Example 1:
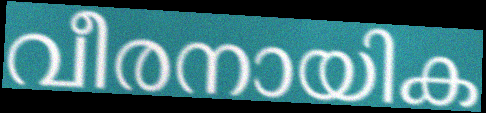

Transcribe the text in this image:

വീരനായിക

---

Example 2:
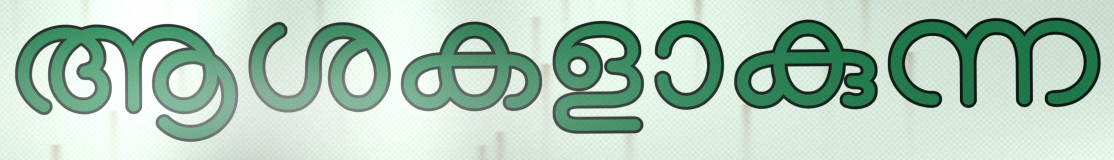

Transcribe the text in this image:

ആശകളാകുന്ന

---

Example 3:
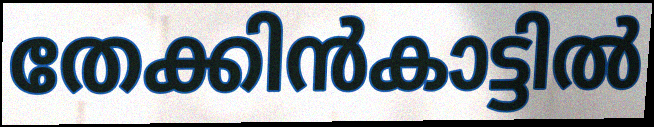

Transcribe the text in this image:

തേക്കിൻകാട്ടിൽ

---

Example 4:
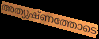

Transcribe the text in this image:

അത്യുഷ്ണത്തോടെ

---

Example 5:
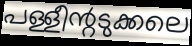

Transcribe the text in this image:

പള്ളീന്റടുക്കലെ